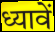
ध्यावें